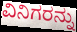
ವಿನಿಗರನ್ನು